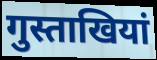
गुस्ताखियां